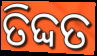
ତିଦ୍ଦତ